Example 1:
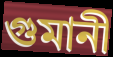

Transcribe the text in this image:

গুমানী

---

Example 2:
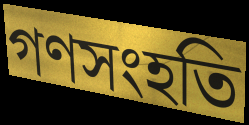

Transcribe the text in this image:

গণসংহতি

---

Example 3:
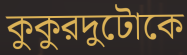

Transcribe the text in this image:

কুকুরদুটোকে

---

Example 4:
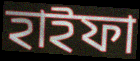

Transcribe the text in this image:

হাইফা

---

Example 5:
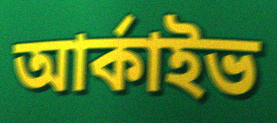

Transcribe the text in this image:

আর্কাইভ